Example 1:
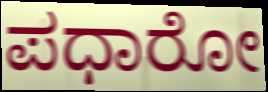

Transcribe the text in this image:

ಪಧಾರೋ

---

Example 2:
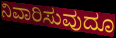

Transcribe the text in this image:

ನಿವಾರಿಸುವುದೂ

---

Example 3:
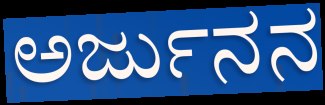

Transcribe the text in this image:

ಅರ್ಜುನನ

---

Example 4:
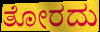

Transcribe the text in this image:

ತೋರದು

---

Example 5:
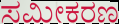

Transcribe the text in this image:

ಸಮೀಕರಣ